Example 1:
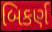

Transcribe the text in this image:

બિકર્ણ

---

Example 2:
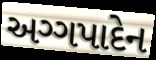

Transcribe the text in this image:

અગ્ગપાદેન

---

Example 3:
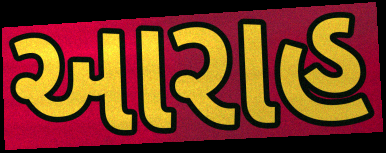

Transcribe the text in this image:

આરાહ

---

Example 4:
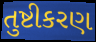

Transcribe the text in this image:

તુષ્ટીકરણ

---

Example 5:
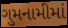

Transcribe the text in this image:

ગુમનામીમાં